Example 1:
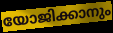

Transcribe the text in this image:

യോജിക്കാനും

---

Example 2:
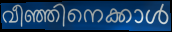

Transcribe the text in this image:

വീഞ്ഞിനെക്കാൾ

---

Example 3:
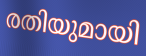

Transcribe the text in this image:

രതിയുമായി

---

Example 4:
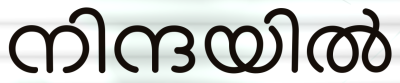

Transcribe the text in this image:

നിന്ദയിൽ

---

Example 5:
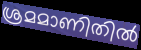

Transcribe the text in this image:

ശ്രമമാണിതിൽ